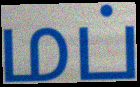
மப்